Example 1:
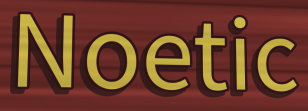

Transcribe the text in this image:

Noetic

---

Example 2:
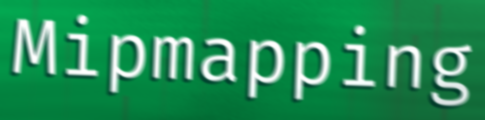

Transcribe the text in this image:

Mipmapping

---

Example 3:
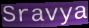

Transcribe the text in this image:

Sravya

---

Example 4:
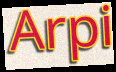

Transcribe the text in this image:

Arpi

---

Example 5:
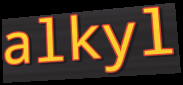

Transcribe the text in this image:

alkyl